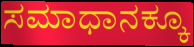
ಸಮಾಧಾನಕ್ಕೂ